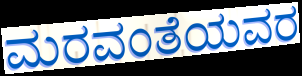
ಮರವಂತೆಯವರ